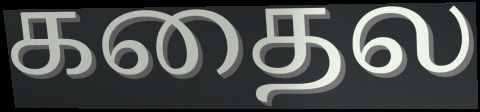
கதைல